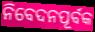
ନିବେଦନପୂର୍ବକ